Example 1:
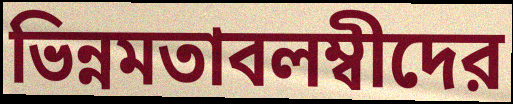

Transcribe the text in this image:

ভিন্নমতাবলম্বীদের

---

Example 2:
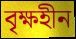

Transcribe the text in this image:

বৃক্ষহীন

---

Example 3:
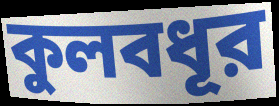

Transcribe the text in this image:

কুলবধূর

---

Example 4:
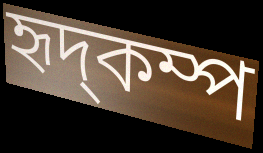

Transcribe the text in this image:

হৃদ্কম্প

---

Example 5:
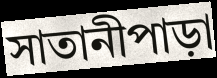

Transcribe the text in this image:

সাতানীপাড়া